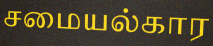
சமையல்கார